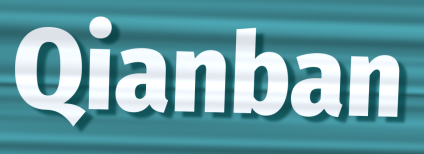
Qianban